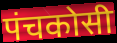
पंचकोसी